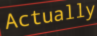
Actually